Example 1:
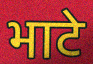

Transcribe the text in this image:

भाटे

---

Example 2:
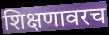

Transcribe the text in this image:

शिक्षणावरच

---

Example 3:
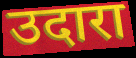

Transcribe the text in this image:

उदारा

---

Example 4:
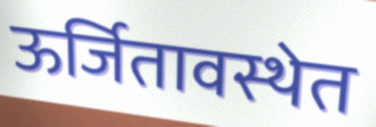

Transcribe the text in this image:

ऊर्जितावस्थेत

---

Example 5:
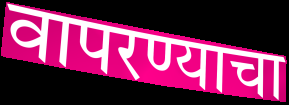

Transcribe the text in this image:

वापरण्याचा